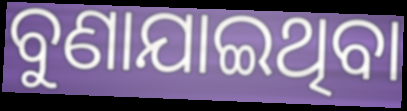
ବୁଣାଯାଇଥିବା